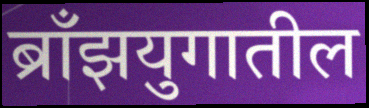
ब्राँझयुगातील